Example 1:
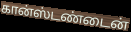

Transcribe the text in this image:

கான்ஸ்டண்டைன்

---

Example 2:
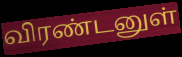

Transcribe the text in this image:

விரண்டனுள்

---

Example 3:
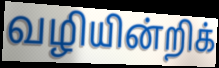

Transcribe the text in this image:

வழியின்றிக்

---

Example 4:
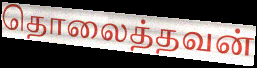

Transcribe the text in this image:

தொலைத்தவன்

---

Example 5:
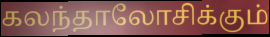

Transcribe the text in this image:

கலந்தாலோசிக்கும்